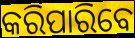
କରିପାରିବେ